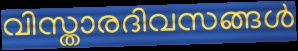
വിസ്താരദിവസങ്ങൾ